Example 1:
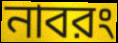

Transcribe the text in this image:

নাবরং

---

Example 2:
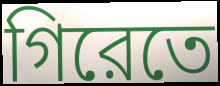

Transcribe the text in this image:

গিরেতে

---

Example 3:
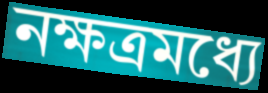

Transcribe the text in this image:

নক্ষত্রমধ্যে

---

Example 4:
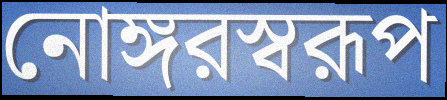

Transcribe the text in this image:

নোঙ্গরস্বরূপ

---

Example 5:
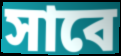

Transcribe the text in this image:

সাবে